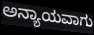
ಅನ್ಯಾಯವಾಗು